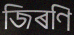
জিৰণি